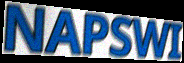
NAPSWI